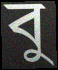
বু